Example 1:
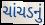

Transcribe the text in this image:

ચાંચડનું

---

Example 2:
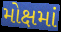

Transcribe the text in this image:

મોક્ષમાં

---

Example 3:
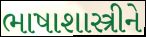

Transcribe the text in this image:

ભાષાશાસ્ત્રીને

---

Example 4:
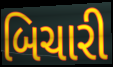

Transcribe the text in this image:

બિચારી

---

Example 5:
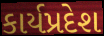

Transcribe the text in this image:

કાર્યપ્રદેશ